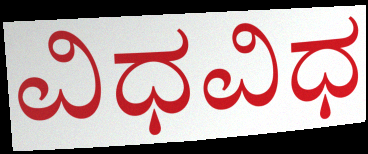
ವಿಧವಿಧ